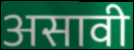
असावी